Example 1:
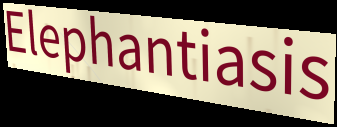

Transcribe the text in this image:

Elephantiasis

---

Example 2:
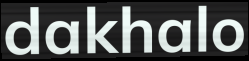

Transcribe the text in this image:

dakhalo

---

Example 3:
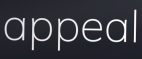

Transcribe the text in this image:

appeal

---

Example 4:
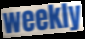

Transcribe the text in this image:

weekly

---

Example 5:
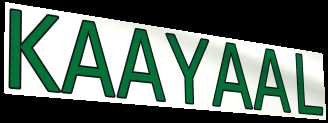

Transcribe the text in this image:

KAAYAAL